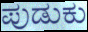
ಪುಡುಕು